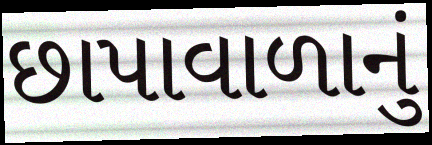
છાપાવાળાનું